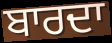
ਬਾਰਦਾ